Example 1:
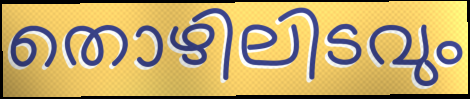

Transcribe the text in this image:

തൊഴിലിടവും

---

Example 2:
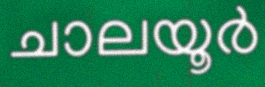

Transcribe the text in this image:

ചാലയൂർ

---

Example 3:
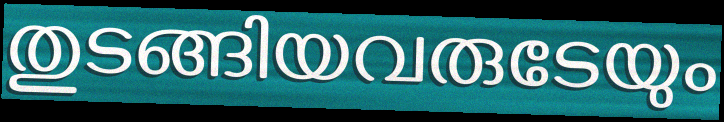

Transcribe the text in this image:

തുടങ്ങിയവരുടേയും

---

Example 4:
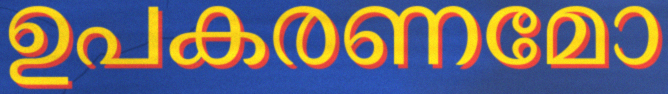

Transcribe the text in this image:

ഉപകരണമോ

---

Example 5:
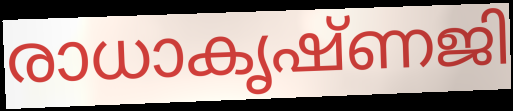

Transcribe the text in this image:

രാധാകൃഷ്ണജി